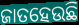
ଜାତହେଉଛି